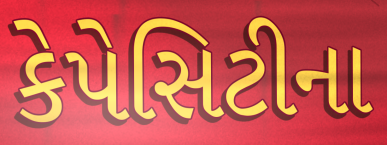
કેપેસિટીના